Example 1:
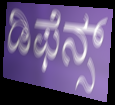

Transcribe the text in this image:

ಡಿಫೆನ್ಸ್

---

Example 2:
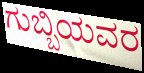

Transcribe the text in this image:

ಗುಬ್ಬಿಯವರ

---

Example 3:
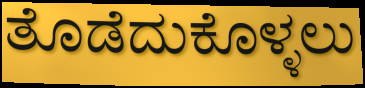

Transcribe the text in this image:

ತೊಡೆದುಕೊಳ್ಳಲು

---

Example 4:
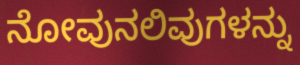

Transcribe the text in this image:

ನೋವುನಲಿವುಗಳನ್ನು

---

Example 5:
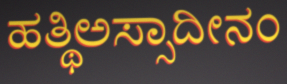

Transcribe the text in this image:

ಹತ್ಥಿಅಸ್ಸಾದೀನಂ